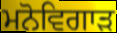
ਮਨੋਵਿਗਾੜ